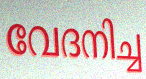
വേദനിച്ച